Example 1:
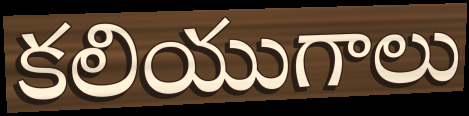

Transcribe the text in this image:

కలియుగాలు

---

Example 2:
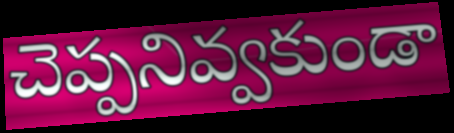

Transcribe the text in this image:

చెప్పనివ్వకుండా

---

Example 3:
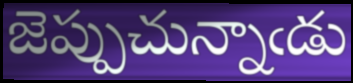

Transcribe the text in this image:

జెప్పుచున్నాఁడు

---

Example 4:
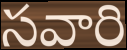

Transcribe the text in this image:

సవారి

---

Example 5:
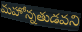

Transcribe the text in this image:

మహోన్నతుడవని